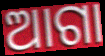
ଆଗା